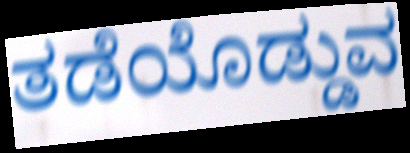
ತಡೆಯೊಡ್ಡುವ